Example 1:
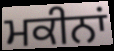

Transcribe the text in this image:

ਮਕੀਨਾਂ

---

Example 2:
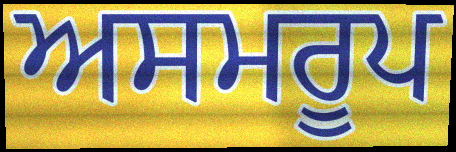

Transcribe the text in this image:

ਅਸਮਰੂਪ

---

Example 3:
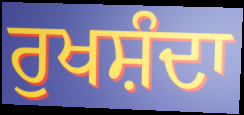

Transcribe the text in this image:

ਰੁਖਸ਼ੰਦਾ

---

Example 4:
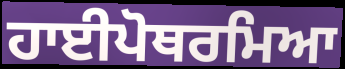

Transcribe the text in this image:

ਹਾਈਪੋਥਰਮਿਆ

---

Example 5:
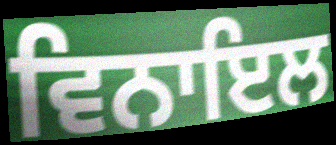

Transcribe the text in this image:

ਵਿਨਾਇਲ